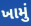
ખામું